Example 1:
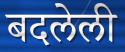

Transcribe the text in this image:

बदलेली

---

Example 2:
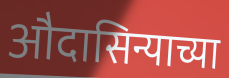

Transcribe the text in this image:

औदासिन्याच्या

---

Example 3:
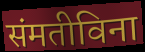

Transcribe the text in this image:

संमतीविना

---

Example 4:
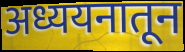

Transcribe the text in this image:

अध्ययनातून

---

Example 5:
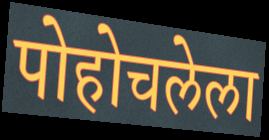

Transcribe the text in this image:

पोहोचलेला